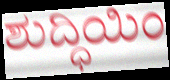
ಶುದ್ಧಿಯಿಂ